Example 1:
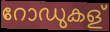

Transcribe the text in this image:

റോഡുകള്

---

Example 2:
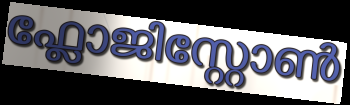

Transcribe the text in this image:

ഫ്ലോജിസ്റ്റോൺ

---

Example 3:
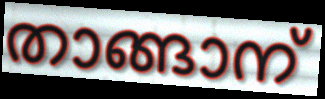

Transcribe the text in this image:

താങ്ങാന്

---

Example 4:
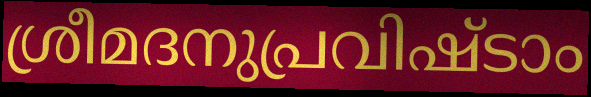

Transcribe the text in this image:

ശ്രീമദനുപ്രവിഷ്ടാം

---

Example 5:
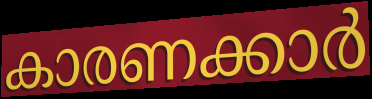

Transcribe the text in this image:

കാരണക്കാർ